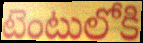
టెంటులోకి